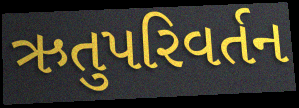
ઋતુપરિવર્તન